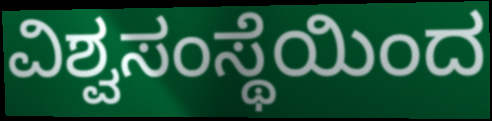
ವಿಶ್ವಸಂಸ್ಥೆಯಿಂದ